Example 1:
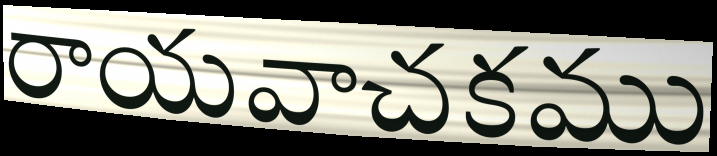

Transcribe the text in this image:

రాయవాచకము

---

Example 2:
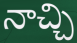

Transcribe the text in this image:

నాచ్చి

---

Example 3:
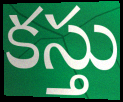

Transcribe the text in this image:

కస్తు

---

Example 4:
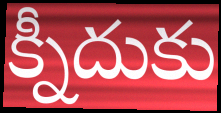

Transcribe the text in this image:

క్నీదుకు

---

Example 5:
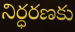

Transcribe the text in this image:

నిర్ధరణకు